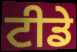
ਟੀਡੇ